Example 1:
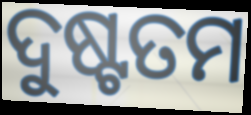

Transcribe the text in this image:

ଦୁଷ୍ଟତମ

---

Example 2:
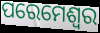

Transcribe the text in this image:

ପରେମେଶ୍ଵର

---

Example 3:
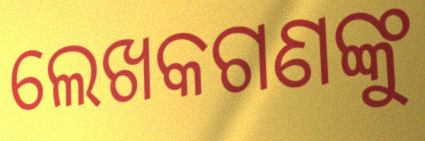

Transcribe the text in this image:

ଲେଖକଗଣଙ୍କୁ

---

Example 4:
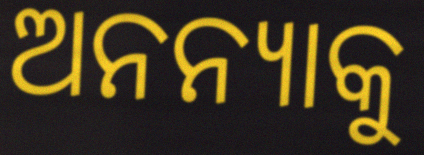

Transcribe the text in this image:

ଅନନ୍ୟାକୁ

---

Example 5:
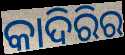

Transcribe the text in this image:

କାଦିରିର